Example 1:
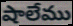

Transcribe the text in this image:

షాలేము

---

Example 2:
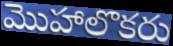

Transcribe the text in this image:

మొహాలొకరు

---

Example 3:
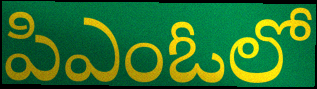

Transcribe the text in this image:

పిఎంఓలో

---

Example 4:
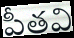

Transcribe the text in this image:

పీతవి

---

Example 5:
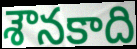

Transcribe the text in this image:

శౌనకాది